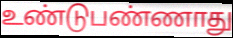
உண்டுபண்ணாது